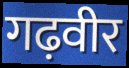
गढ़वीर